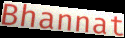
Bhannat